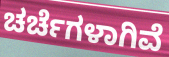
ಚರ್ಚೆಗಳಾಗಿವೆ